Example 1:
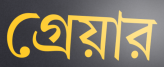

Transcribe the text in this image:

গ্রেয়ার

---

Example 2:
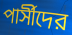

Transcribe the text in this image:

পার্সীদের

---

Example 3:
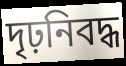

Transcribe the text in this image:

দৃঢ়নিবদ্ধ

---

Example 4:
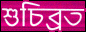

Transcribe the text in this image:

শুচিব্রত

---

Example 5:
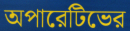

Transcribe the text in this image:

অপারেটিভের